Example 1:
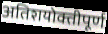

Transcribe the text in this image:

अतिशयोक्तीपूर्ण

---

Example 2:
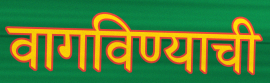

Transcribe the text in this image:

वागविण्याची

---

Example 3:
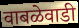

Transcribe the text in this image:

वाबळेवाडी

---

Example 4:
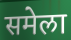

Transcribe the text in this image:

समेला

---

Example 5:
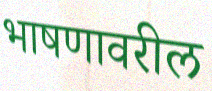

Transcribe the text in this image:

भाषणावरील